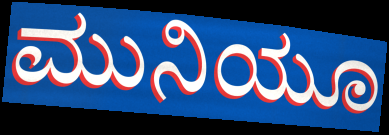
ಮುನಿಯೂ